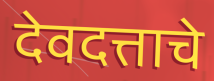
देवदत्ताचे